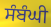
ਸੰਬੰਘੀ